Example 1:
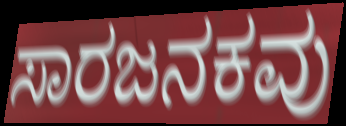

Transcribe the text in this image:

ಸಾರಜನಕವು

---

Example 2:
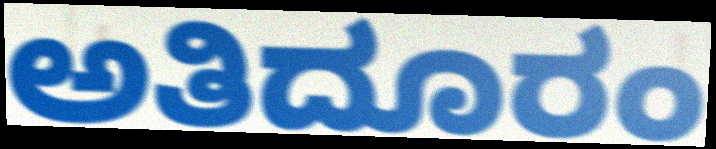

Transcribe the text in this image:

ಅತಿದೂರಂ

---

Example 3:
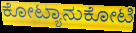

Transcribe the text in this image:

ಕೋಟ್ಯಾನುಕೋಟಿ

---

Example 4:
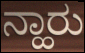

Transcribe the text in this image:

ನ್ಹಾರು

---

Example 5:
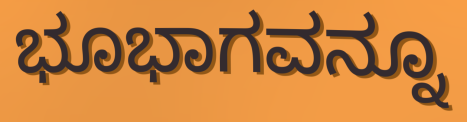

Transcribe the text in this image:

ಭೂಭಾಗವನ್ನೂ